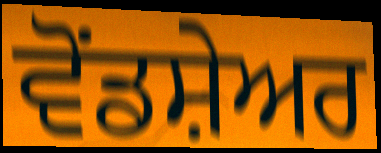
ਵੋਂਡਸ਼ੇਅਰ